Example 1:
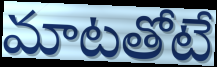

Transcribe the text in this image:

మాటతోటే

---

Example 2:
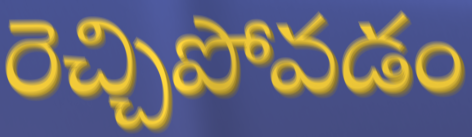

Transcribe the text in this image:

రెచ్చిపోవడం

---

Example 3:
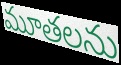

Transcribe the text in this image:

మూతలను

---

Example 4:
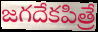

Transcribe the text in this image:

జగదేకపిత్రే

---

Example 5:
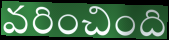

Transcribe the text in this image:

వరించింది